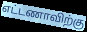
எட்டணாவிற்கு